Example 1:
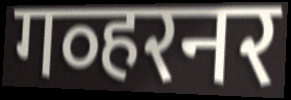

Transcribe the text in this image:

गव्हरनर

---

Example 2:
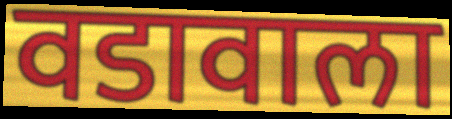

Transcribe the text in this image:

वडावाला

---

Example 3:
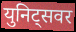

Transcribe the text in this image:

युनिट्सवर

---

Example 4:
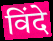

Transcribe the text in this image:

विंदे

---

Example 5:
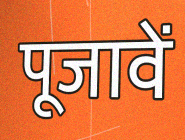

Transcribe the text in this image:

पूजावें